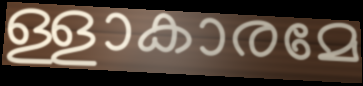
ള്ളാകാരമേ